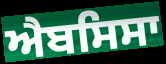
ਐਬਸਿਸਾ